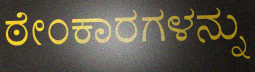
ಠೇಂಕಾರಗಳನ್ನು